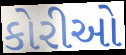
કોરીઓ